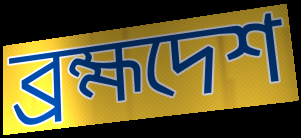
ব্রহ্মদেশ